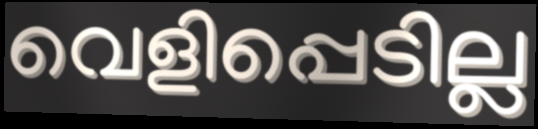
വെളിപ്പെടില്ല